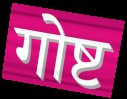
गोष्ट